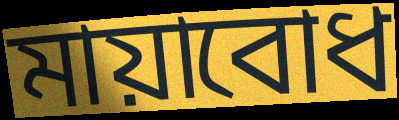
মায়াবোধ